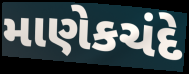
માણેકચંદે